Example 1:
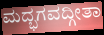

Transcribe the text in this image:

ಮದ್ಭಗವದ್ಗೀತಾ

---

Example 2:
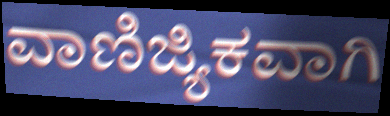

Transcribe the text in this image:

ವಾಣಿಜ್ಯಿಕವಾಗಿ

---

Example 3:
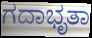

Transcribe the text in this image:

ಗದಾಭೃತಾ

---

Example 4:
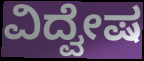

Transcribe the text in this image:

ವಿದ್ವೇಷ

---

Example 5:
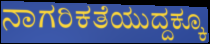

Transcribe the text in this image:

ನಾಗರಿಕತೆಯುದ್ದಕ್ಕೂ